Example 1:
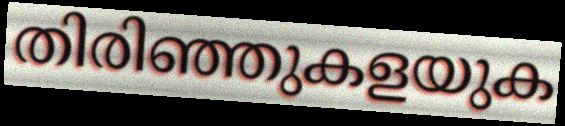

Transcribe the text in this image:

തിരിഞ്ഞുകളയുക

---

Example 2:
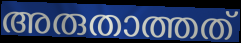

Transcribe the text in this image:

അരുതാത്തത്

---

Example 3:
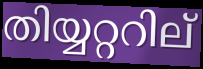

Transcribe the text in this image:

തിയ്യറ്ററില്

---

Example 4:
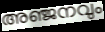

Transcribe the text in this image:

അഞ്ജനവും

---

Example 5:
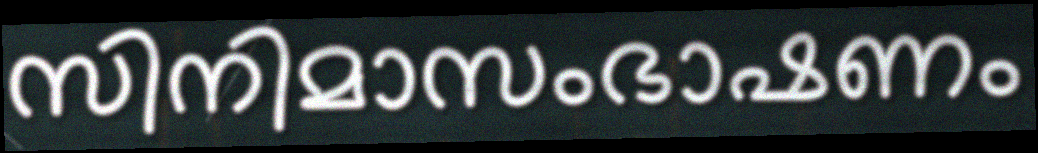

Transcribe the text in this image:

സിനിമാസംഭാഷണം